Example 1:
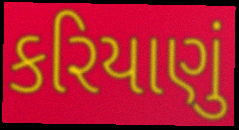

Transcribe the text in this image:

કરિયાણું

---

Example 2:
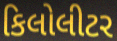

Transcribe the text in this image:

કિલોલીટર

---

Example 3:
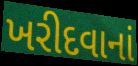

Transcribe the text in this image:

ખરીદવાનાં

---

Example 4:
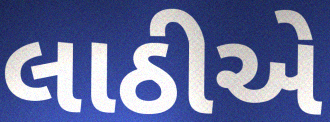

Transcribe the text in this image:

લાઠીએ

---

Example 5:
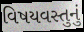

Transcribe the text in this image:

વિષયવસ્તુનું